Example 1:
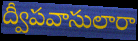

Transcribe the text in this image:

ద్వీపవాసులారా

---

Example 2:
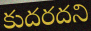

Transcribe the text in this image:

కుదరదని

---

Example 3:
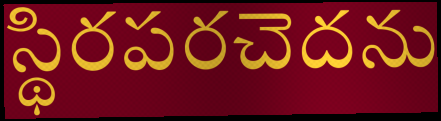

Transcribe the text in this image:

స్థిరపరచెదను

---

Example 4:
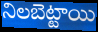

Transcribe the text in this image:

నిలబెట్టాయి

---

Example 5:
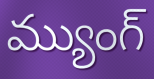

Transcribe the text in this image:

మ్యుంగ్